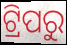
ଟ୍ରିପରୁ